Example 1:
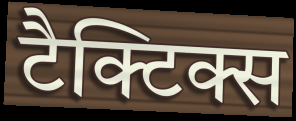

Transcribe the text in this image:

टैक्टिक्स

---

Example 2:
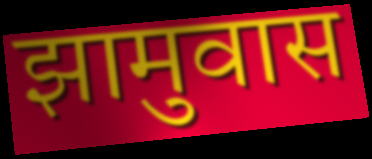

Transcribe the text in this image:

झामुवास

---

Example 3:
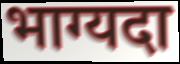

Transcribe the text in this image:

भाग्यदा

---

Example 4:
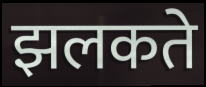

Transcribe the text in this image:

झलकते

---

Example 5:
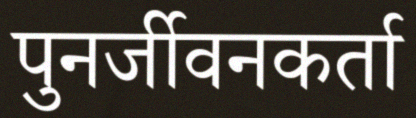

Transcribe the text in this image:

पुनर्जीवनकर्ता